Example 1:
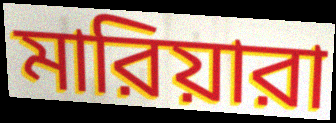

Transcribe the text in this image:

মারিয়ারা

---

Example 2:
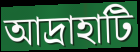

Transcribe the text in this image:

আদ্রাহাটি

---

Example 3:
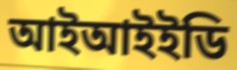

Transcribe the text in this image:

আইআইইডি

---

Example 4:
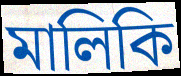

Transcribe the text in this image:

মালিকি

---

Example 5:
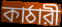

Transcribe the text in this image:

কাঠারী